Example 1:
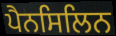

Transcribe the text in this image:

ਪੈਨਸਿਲਿਨ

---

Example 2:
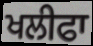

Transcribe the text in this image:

ਖਲੀਫਾ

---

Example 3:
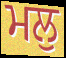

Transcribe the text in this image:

ਮਲੁ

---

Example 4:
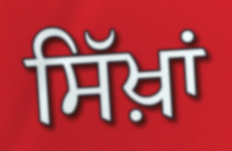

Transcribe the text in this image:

ਸਿੱਖ਼ਾਂ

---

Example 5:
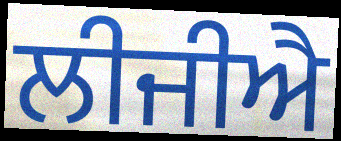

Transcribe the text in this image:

ਲੀਜੀਐ